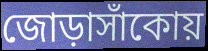
জোড়াসাঁকোয়